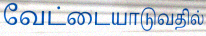
வேட்டையாடுவதில்